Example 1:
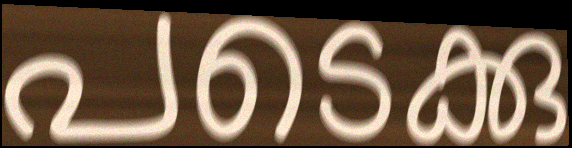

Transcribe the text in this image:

പടെക്കു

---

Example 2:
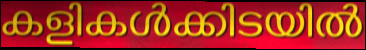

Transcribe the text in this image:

കളികൾക്കിടയിൽ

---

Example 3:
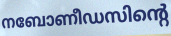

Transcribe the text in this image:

നബോണീഡസിന്റെ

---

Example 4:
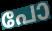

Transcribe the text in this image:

പോ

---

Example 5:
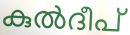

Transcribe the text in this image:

കുൽദീപ്